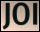
JOI